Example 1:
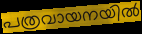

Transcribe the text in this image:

പത്രവായനയിൽ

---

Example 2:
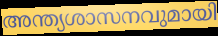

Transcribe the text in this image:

അന്ത്യശാസനവുമായി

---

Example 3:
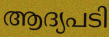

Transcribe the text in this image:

ആദ്യപടി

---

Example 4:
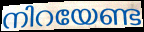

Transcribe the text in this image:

നിറയേണ്ട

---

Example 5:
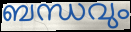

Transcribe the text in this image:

ബന്ധവും